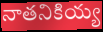
నాతనికియ్య